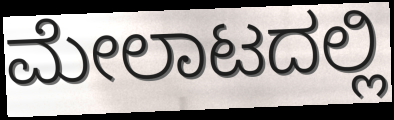
ಮೇಲಾಟದಲ್ಲಿ